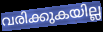
വരിക്കുകയില്ല